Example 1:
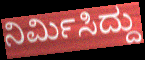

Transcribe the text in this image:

ನಿರ್ಮಿಸಿದ್ದು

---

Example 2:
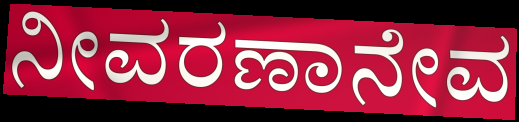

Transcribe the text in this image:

ನೀವರಣಾನೇವ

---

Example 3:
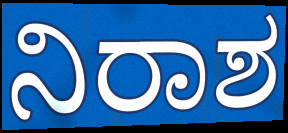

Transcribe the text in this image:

ನಿರಾಶ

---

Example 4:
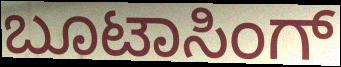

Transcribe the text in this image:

ಬೂಟಾಸಿಂಗ್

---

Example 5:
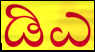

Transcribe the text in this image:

ಡಿಎ